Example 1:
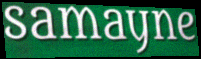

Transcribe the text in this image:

samayne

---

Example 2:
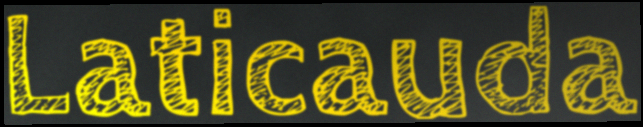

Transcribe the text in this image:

Laticauda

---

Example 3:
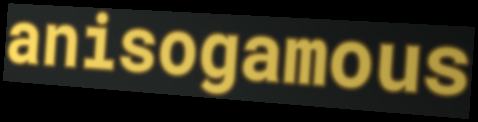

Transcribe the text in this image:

anisogamous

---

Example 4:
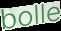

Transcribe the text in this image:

bolle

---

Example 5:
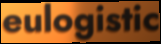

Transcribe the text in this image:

eulogistic